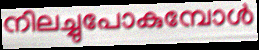
നിലച്ചുപോകുമ്പോൾ